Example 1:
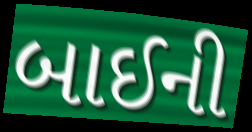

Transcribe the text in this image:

બાઈની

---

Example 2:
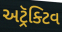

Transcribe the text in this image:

અટ્રૅક્ટિવ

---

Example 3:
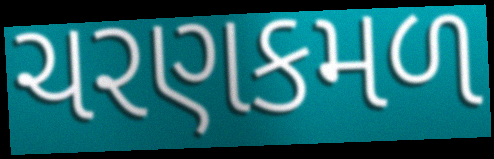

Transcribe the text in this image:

ચરણકમળ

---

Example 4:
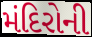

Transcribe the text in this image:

મંદિરોની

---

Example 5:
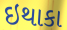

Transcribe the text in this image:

ઇથાકા